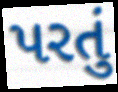
પરતું